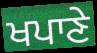
ਖਪਾਣੇ